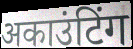
अकाउंटिंग